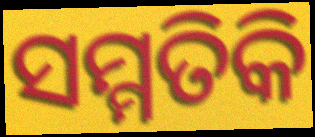
ସମ୍ମତିକି